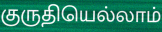
குருதியெல்லாம்